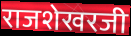
राजशेखरजी